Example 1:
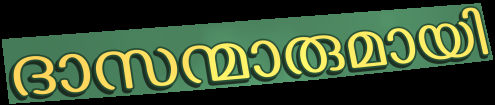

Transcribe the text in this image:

ദാസന്മാരുമായി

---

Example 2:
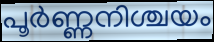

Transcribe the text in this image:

പൂർണ്ണനിശ്ചയം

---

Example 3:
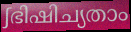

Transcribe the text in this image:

ഽഭിഷിച്യതാം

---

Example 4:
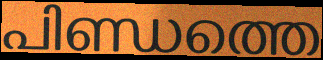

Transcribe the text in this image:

പിണ്ഡത്തെ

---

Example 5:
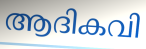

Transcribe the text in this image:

ആദികവി